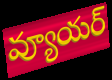
వ్యూయర్